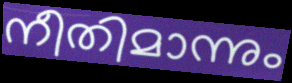
നീതിമാന്നും